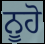
ਨੂਹੋ